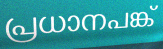
പ്രധാനപങ്ക്